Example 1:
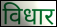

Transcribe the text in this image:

विधार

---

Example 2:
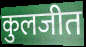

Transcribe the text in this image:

कुलजीत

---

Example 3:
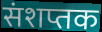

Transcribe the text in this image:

संशप्तक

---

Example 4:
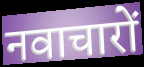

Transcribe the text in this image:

नवाचारों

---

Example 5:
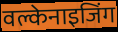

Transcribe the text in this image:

वल्केनाइजिंग